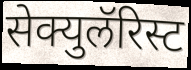
सेक्युलॅरिस्ट